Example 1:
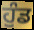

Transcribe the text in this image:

ਹੁੰਡ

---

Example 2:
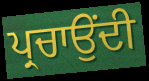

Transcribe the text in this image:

ਪ੍ਰਚਾਉਂਦੀ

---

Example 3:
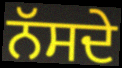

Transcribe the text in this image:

ਨੱਸਦੇ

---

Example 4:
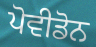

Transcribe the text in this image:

ਪੋਵੀਡੋਨ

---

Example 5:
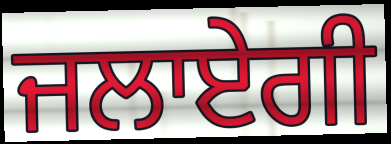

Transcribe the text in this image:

ਜਲਾਏਗੀ